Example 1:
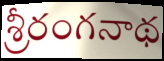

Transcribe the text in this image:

శ్రీరంగనాథ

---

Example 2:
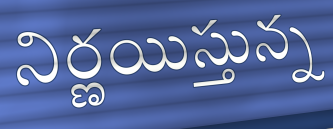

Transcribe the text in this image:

నిర్ణయిస్తున్న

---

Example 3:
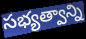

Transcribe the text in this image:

సభ్యత్వాన్ని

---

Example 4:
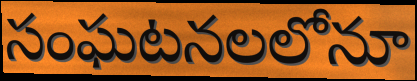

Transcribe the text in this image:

సంఘటనలలోనూ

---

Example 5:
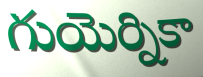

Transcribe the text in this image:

గుయెర్నికా